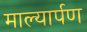
माल्यार्पण